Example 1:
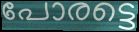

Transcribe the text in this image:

പോരട്ടെ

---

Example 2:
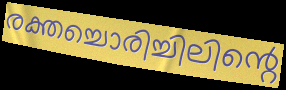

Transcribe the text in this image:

രക്തച്ചൊരിച്ചിലിന്റെ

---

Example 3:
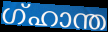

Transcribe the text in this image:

ഗ്ഹാന്ത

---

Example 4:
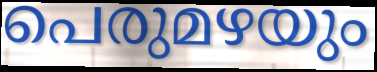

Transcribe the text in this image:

പെരുമഴയും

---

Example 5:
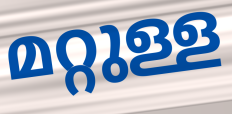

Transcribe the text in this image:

മറ്റുള്ള